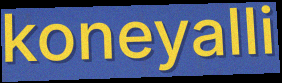
koneyalli